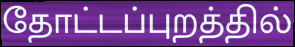
தோட்டப்புறத்தில்